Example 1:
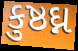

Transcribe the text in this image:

કુષ્ઠઘ્ન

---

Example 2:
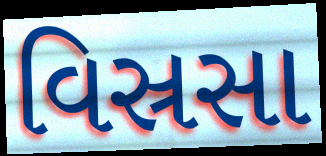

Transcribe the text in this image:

વિસ્રસા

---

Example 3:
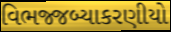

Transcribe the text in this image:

વિભજ્જબ્યાકરણીયો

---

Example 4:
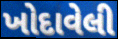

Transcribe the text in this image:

ખોદાવેલી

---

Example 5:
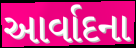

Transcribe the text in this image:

આર્વાદના